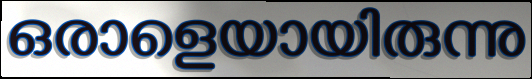
ഒരാളെയായിരുന്നു